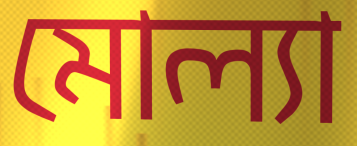
মোল্যা